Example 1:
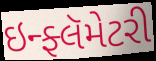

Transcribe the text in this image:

ઇન્ફ્લૅમેટરી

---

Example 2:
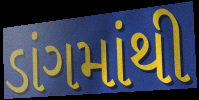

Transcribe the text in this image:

ડાંગમાંથી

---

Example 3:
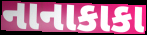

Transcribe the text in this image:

નાનાકાકા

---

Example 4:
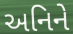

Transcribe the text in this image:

અનિને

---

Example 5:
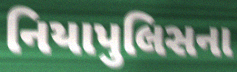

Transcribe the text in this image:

નિયાપુલિસના